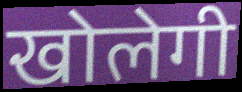
खोलेगी